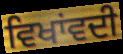
ਵਿਖਾਂਵਦੀ